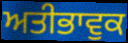
ਅਤੀਭਾਵੁਕ